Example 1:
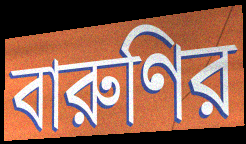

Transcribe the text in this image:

বারুণির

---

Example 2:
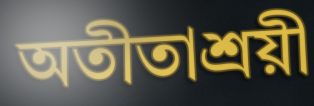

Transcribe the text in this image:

অতীতাশ্রয়ী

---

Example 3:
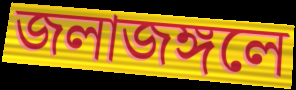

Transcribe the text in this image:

জলাজঙ্গলে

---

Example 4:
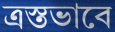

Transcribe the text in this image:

ত্রস্তভাবে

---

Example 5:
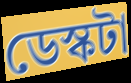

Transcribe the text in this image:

ডেস্কটা